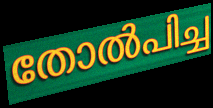
തോൽപിച്ച